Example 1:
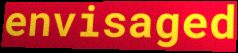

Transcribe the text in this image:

envisaged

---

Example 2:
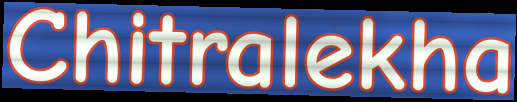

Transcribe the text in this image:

Chitralekha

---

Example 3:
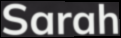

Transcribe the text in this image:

Sarah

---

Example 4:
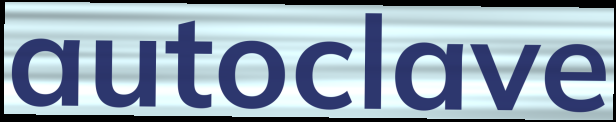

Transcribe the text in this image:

autoclave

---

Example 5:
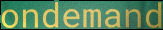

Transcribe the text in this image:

ondemand